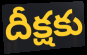
దీక్షకు